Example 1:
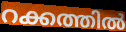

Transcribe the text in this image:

റക്കത്തിൽ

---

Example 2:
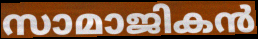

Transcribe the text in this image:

സാമാജികൻ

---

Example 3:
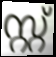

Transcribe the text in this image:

സ്റ്റ്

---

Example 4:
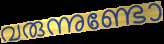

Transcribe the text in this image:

വരുന്നുണ്ടോ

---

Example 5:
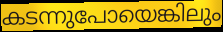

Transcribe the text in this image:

കടന്നുപോയെങ്കിലും